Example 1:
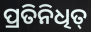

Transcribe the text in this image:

ପ୍ରତିନିଧିତ୍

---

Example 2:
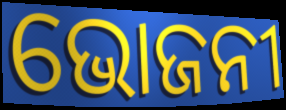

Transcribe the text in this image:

ଭୋଜନୀ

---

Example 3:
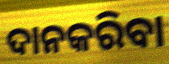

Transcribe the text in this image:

ଦାନକରିବା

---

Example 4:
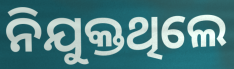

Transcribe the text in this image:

ନିଯୁକ୍ତଥିଲେ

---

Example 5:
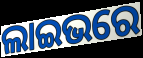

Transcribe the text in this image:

ଲାଇଭରେ